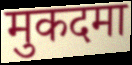
मुकदमा